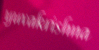
yuvakrishna